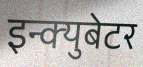
इन्क्‍युबेटर